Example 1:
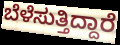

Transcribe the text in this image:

ಬೆಳೆಸುತ್ತಿದ್ದಾರೆ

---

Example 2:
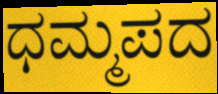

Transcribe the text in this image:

ಧಮ್ಮಪದ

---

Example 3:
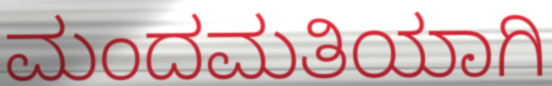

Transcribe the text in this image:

ಮಂದಮತಿಯಾಗಿ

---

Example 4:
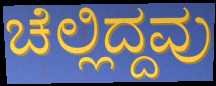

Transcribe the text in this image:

ಚೆಲ್ಲಿದ್ದವು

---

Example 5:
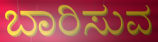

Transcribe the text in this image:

ಬಾರಿಸುವ